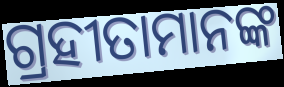
ଗ୍ରହୀତାମାନଙ୍କ